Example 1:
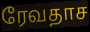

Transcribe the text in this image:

ரேவதாச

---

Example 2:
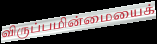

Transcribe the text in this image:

விருப்பமின்மையைக்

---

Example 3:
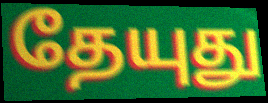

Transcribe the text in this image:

தேயுது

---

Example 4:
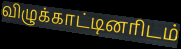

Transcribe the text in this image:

விழுக்காட்டினரிடம்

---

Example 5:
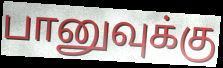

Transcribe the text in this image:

பானுவுக்கு